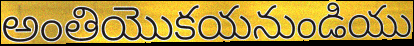
అంతియొకయనుండియు